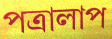
পত্ৰালাপ